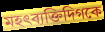
মহৎব্যক্তিদিগকে